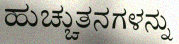
ಹುಚ್ಚುತನಗಳನ್ನು